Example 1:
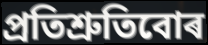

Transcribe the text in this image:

প্ৰতিশ্ৰুতিবোৰ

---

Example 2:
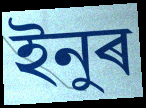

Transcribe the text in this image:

ইনুৰ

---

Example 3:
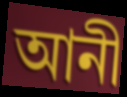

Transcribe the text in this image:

আনী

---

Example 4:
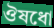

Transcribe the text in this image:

ঔষধো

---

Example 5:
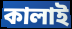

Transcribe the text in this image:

কালাই